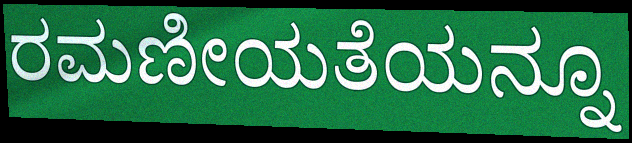
ರಮಣೀಯತೆಯನ್ನೂ